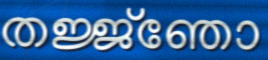
തജ്ജ്ഞോ